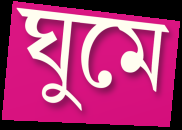
ঘুমে